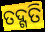
ତଦ୍ଗତି